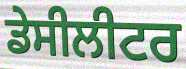
ਡੇਸੀਲੀਟਰ